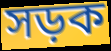
সড়ক